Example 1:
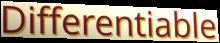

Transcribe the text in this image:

Differentiable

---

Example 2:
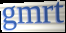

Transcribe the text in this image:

gmrt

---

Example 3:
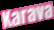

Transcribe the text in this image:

Karava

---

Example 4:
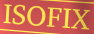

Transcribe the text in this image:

ISOFIX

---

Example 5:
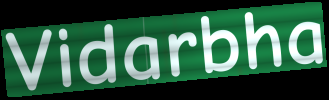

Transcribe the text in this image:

Vidarbha